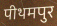
पीथमपुर